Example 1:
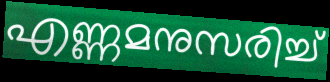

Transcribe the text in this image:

എണ്ണമനുസരിച്ച്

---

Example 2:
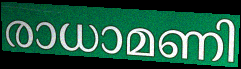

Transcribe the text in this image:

രാധാമണി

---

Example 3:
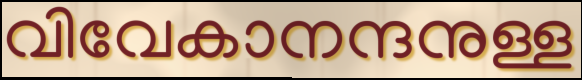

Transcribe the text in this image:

വിവേകാനന്ദനുള്ള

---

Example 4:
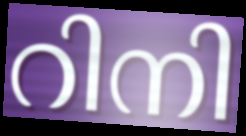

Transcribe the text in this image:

റിനി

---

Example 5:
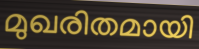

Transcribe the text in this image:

മുഖരിതമായി